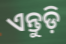
ଏନ୍ତୁଡ଼ି